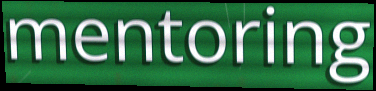
mentoring